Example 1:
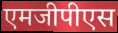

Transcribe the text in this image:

एमजीपीएस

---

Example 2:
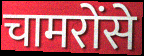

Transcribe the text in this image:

चामरोंसे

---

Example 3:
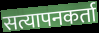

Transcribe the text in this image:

सत्यापनकर्ता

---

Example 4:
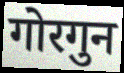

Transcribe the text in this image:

गोरगुन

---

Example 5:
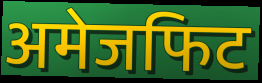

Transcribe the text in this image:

अमेजफिट